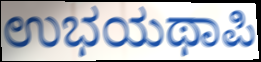
ಉಭಯಥಾಪಿ